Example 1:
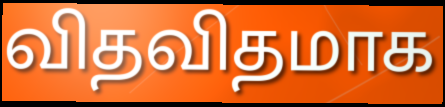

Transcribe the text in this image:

விதவிதமாக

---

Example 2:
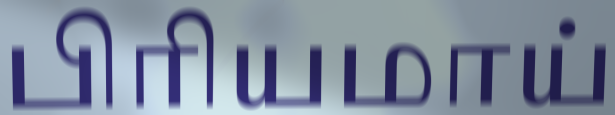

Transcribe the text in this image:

பிரியமாய்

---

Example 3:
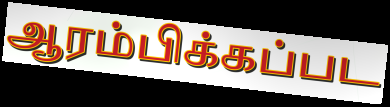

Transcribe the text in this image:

ஆரம்பிக்கப்பட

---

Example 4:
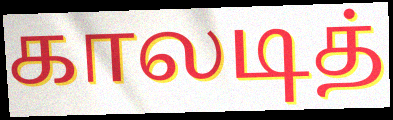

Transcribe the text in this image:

காலடித்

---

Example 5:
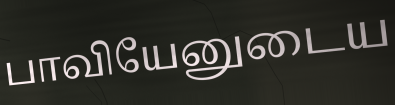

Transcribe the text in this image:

பாவியேனுடைய